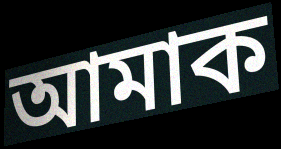
আমাক